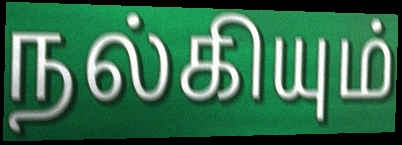
நல்கியும்